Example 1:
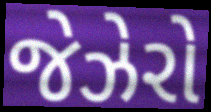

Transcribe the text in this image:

જેઝેરો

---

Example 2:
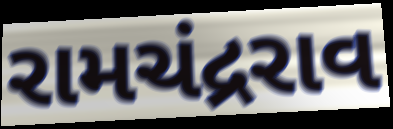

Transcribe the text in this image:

રામચંદ્રરાવ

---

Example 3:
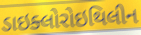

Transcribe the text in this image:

ડાઇક્લોરોઇથિલીન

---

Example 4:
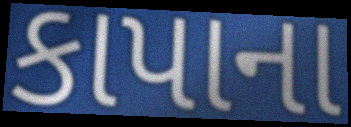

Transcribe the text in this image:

કાપાના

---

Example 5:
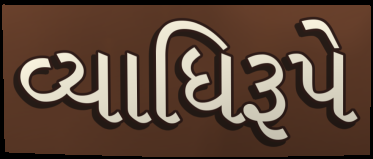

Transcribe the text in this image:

વ્યાધિરૂપે